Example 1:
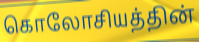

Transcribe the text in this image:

கொலோசியத்தின்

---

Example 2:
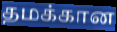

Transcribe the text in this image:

தமக்கான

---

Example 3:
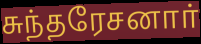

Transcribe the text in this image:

சுந்தரேசனார்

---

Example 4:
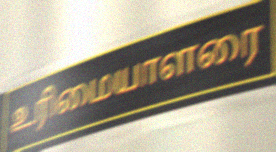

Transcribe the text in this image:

உரிமையாளரை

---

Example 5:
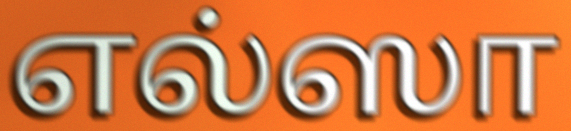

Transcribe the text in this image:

எல்ஸா